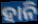
ହାନି